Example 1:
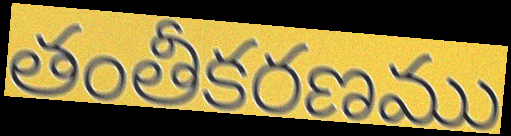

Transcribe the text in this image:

తంతీకరణము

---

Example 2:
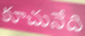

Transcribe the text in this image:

కూచునేది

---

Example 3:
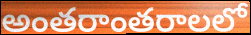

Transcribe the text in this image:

అంతరాంతరాలలో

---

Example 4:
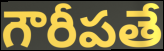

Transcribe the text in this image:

గౌరీపతే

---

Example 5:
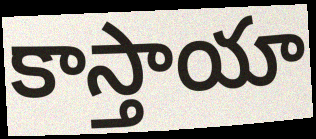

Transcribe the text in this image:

కాస్తాయా